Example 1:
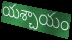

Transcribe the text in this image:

యశ్చాయం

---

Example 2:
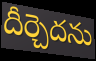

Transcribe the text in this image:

దీర్చెదను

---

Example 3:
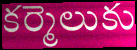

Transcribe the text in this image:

కర్మెలుకు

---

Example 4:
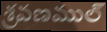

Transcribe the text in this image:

శ్రవణముల్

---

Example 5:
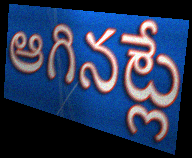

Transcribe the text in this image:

ఆగినట్లే